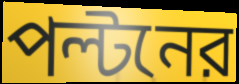
পল্টনের